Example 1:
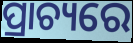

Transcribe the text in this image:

ପ୍ରାଚ୍ୟରେ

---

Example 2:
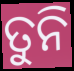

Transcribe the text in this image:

ତୁନି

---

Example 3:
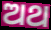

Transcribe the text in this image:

ଅଥ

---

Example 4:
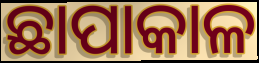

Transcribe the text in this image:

ଛାପାକାଳ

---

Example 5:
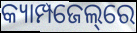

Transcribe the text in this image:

କ୍ୟାମ୍ପଜେଲ୍‌ରେ